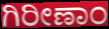
ಗಿರೀಣಾಂ